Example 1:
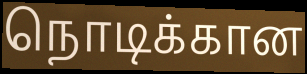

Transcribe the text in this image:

நொடிக்கான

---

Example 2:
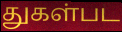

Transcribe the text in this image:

துகள்பட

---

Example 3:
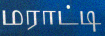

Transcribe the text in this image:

மராட்டி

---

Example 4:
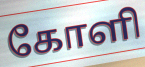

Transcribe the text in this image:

கோளி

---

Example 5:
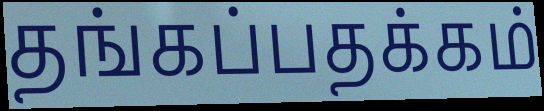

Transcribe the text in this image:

தங்கப்பதக்கம்